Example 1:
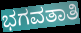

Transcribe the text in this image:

ಭಗವತಾತಿ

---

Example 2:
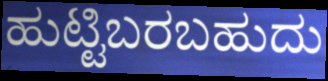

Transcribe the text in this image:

ಹುಟ್ಟಿಬರಬಹುದು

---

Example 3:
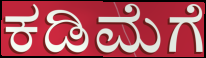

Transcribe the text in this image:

ಕಡಿಮೆಗೆ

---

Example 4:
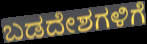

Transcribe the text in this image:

ಬಡದೇಶಗಳಿಗೆ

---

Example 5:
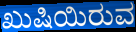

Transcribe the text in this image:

ಖುಷಿಯಿರುವ